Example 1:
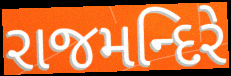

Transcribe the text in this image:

રાજમન્દિરે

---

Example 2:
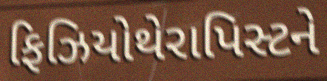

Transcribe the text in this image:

ફિઝિયોથેરાપિસ્ટને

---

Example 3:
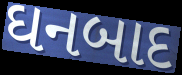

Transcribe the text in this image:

ઘનબાદ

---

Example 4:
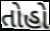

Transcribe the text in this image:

તોહો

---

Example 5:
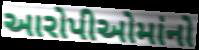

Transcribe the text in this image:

આરોપીઓમાંનો